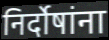
निर्दोषांना